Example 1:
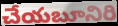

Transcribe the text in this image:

చేయబూనిరి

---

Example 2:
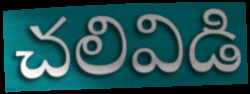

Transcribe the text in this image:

చలివిడి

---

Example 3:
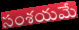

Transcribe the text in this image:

సంశయమే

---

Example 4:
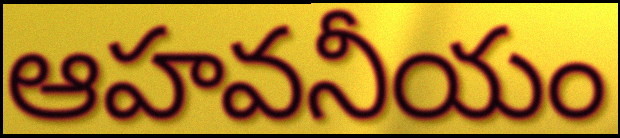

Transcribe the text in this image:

ఆహవనీయం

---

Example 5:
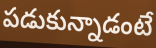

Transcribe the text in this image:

పడుకున్నాడంటే